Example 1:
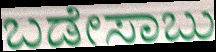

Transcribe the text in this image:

ಬಡೇಸಾಬು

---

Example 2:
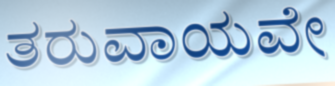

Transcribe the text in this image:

ತರುವಾಯವೇ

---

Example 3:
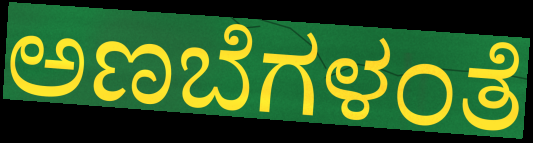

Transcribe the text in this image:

ಅಣಬೆಗಳಂತೆ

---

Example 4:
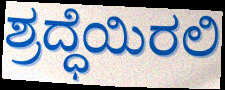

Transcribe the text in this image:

ಶ್ರದ್ಧೆಯಿರಲಿ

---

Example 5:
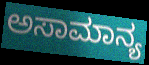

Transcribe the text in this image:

ಅಸಾಮಾನ್ಯ